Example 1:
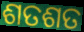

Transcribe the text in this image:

ଶତଶତ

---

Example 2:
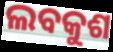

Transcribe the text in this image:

ଲବକୁଶ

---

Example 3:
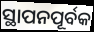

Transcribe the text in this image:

ସ୍ଥାପନପୂର୍ବକ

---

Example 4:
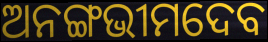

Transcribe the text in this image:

ଅନଙ୍ଗଭୀମଦେବ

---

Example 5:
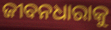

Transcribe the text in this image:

ଜୀବନଧାରାକୁ